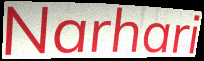
Narhari